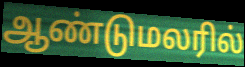
ஆண்டுமலரில்